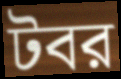
টবর